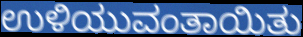
ಉಳಿಯುವಂತಾಯಿತು